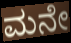
ಮನೇ